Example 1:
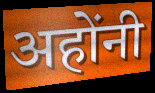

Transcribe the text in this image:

अहोंनी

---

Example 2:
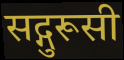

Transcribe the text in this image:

सद्गुरूसी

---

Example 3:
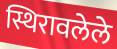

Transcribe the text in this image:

स्थिरावलेले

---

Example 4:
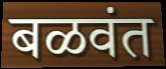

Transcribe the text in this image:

बळवंत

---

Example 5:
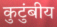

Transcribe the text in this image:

कुटुंबीय